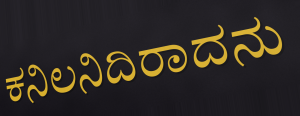
ಕನಿಲನಿದಿರಾದನು